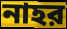
নাহর